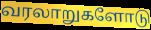
வரலாறுகளோடு